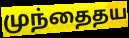
முந்தைதய